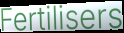
Fertilisers